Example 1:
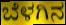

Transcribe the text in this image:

ಬೆಳಗಿನ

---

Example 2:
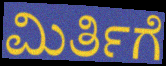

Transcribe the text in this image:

ಮಿರ್ತಿಗೆ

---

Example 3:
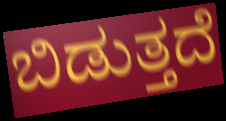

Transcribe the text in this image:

ಬಿಡುತ್ತದೆ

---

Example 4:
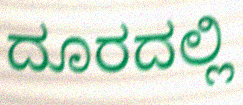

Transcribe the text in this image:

ದೂರದಲ್ಲಿ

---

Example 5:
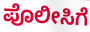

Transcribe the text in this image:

ಪೊಲೀಸಿಗೆ